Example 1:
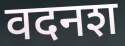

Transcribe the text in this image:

वदनश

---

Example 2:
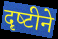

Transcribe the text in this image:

दृष्‍टीने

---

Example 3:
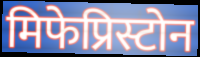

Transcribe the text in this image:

मिफेप्रिस्टोन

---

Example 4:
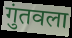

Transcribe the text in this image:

गुंतवला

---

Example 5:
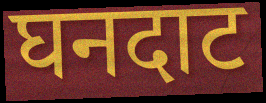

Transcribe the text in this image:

घनदाट